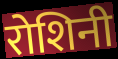
रोशिनी